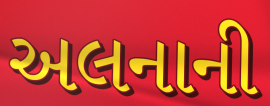
અલનાની